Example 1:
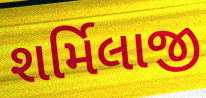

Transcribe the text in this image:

શર્મિલાજી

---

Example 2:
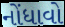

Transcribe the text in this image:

નોંધાવો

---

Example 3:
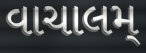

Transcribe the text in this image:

વાચાલમ્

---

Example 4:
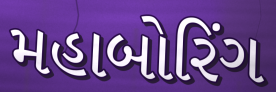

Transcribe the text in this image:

મહાબોરિંગ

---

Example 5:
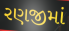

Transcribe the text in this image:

રણજીમાં